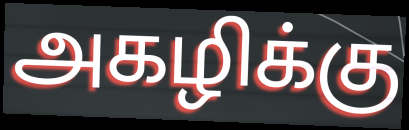
அகழிக்கு